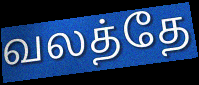
வலத்தே